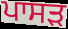
ਪਾਸੜ